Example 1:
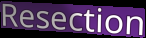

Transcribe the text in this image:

Resection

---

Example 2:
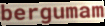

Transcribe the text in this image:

bergumam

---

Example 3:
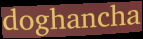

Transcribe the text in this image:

doghancha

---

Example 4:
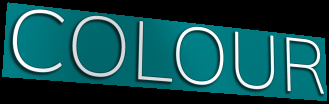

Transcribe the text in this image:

COLOUR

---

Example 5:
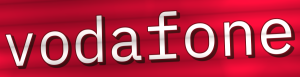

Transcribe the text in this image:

vodafone